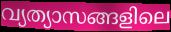
വ്യത്യാസങ്ങളിലെ